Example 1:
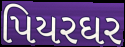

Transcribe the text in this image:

પિયરઘર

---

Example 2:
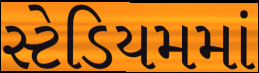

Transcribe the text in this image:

સ્ટેડિયમમાં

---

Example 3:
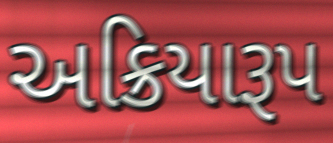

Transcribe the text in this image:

અક્રિયારૂપ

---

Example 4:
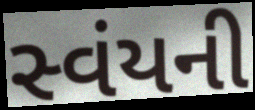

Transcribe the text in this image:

સ્વંયની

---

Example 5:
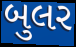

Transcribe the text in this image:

બુલર